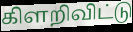
கிளறிவிட்டு